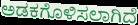
ಅಡಕಗೊಳಿಸಲಾಗಿದೆ